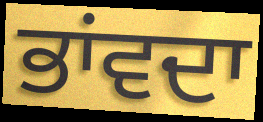
ਭਾਂਵਦਾ